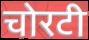
चोरटी